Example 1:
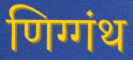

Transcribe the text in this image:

णिग्गंथ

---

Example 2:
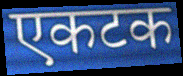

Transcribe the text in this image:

एकटक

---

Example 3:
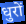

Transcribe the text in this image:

धुरों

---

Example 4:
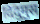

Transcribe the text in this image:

दिदुमुस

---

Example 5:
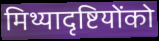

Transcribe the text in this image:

मिथ्यादृष्टियोंको